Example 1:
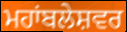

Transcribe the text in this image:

ਮਹਾਂਬਲੇਸ਼ਵਰ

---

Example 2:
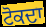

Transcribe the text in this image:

ਟੋਕਦਾ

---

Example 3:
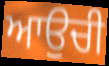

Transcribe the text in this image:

ਆਉਚੀ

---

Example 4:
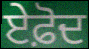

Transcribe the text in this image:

ਏਫ਼ੋਦ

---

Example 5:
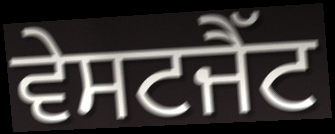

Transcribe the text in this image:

ਵੇਸਟਜੈੱਟ